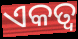
ଏକତ୍ୱ